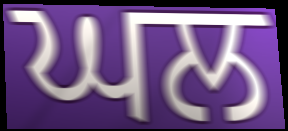
ਘਲ